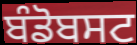
ਬੰਡੋਬਸਟ